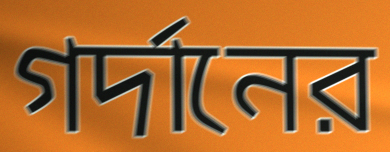
গর্দানের